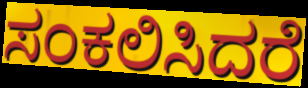
ಸಂಕಲಿಸಿದರೆ